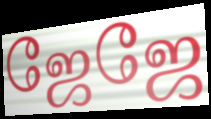
ஜேஜே